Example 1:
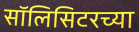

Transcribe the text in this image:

सॉलिसिटरच्या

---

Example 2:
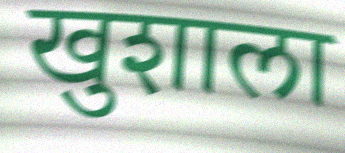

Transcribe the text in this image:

खुशाला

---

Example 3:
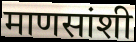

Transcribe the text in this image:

माणसांशी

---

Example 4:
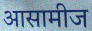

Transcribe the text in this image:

आसामीज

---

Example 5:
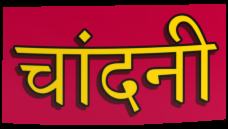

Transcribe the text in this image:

चांदनी